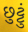
છુટ્ટું